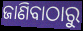
ଜାଣିବାଠାରୁ